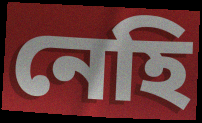
নেহি